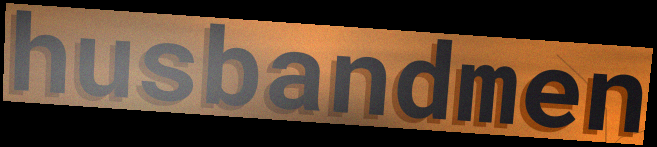
husbandmen